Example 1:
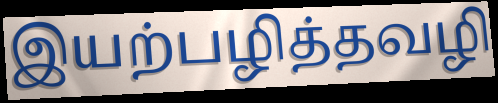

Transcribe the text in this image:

இயற்பழித்தவழி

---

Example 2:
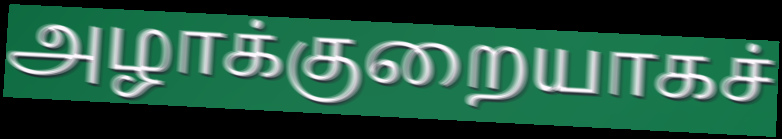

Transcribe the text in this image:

அழாக்குறையாகச்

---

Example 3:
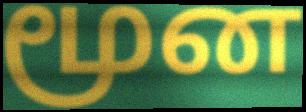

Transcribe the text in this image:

மூன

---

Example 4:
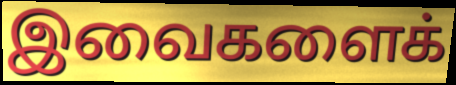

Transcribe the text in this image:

இவைகளைக்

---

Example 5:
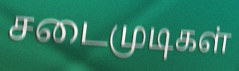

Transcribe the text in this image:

சடைமுடிகள்